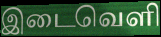
இடைவெளி